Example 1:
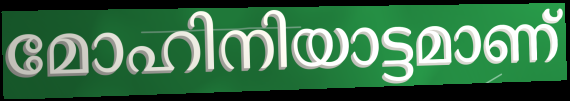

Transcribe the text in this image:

മോഹിനിയാട്ടമാണ്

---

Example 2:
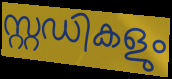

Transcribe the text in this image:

സ്റ്റഡികളും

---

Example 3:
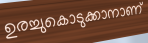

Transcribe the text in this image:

ഉരച്ചുകൊടുക്കാനാണ്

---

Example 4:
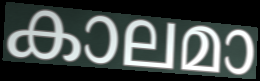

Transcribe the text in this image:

കാലമാ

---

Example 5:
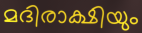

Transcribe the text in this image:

മദിരാക്ഷിയും